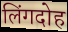
लिंगदोह